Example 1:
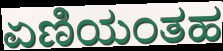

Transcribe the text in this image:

ಏಣಿಯಂತಹ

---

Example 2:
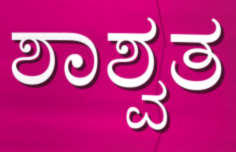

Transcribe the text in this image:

ಶಾಶ್ವತ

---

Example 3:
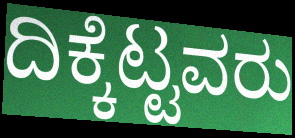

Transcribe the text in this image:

ದಿಕ್ಕೆಟ್ಟವರು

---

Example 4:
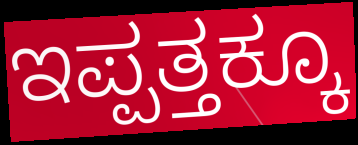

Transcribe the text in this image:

ಇಪ್ಪತ್ತಕ್ಕೂ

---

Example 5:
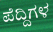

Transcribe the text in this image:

ಪೆದ್ದಿಗಳ